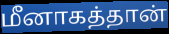
மீனாகத்தான்